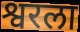
श्वरला